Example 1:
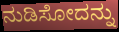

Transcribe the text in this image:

ನುಡಿಸೋದನ್ನು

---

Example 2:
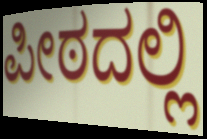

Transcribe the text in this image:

ಪೀಠದಲ್ಲಿ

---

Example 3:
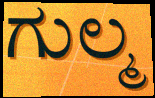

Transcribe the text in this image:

ಗುಲ್ಮ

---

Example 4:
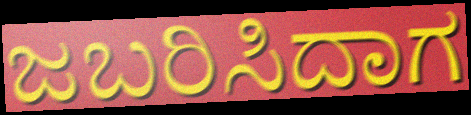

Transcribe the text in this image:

ಜಬರಿಸಿದಾಗ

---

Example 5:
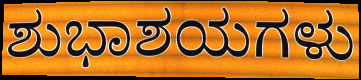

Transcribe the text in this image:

ಶುಭಾಶಯಗಳು